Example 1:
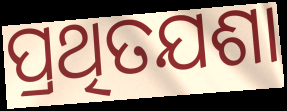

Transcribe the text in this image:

ପ୍ରଥିତଯଶା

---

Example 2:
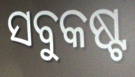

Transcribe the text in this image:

ସବୁକଷ୍ଟ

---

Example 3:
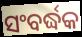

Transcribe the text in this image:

ସଂବର୍ଦ୍ଧକ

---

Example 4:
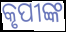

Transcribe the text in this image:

କୃପୀଙ୍କ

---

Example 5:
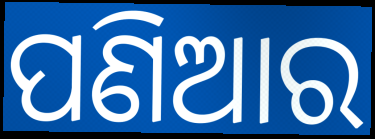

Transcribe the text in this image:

ପଣିଆର